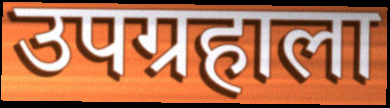
उपग्रहाला